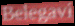
Belegavi